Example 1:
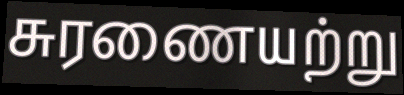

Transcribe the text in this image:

சுரணையற்று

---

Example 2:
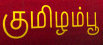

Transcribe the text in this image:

குமிழம்பூ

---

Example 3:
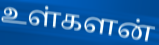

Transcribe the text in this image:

உள்களன்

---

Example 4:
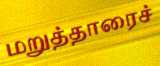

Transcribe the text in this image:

மறுத்தாரைச்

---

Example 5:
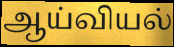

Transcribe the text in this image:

ஆய்வியல்